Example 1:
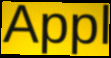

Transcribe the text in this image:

Appl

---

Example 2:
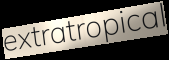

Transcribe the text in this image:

extratropical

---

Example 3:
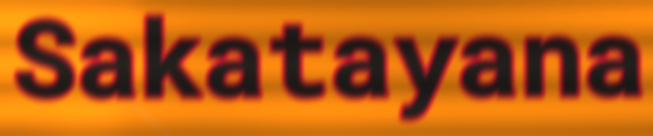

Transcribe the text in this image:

Sakatayana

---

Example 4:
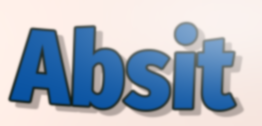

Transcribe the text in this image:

Absit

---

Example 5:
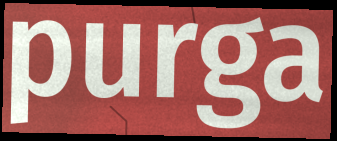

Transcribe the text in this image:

purga